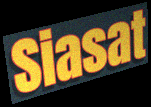
Siasat